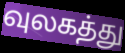
வுலகத்து